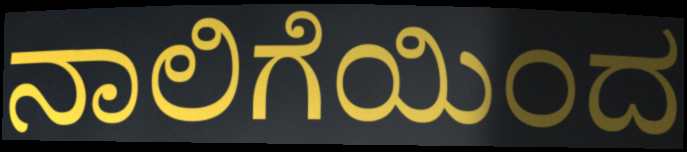
ನಾಲಿಗೆಯಿಂದ